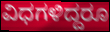
ವಿಧಗಳಿದ್ದರೂ